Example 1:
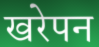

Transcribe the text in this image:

खरेपन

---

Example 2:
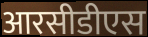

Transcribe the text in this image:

आरसीडीएस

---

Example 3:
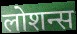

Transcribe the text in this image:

लोशन्स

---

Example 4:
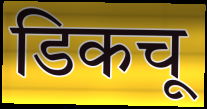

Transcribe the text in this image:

डिकचू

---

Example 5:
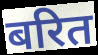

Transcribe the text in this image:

बरित